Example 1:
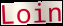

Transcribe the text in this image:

Loin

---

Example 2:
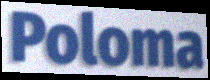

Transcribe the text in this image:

Poloma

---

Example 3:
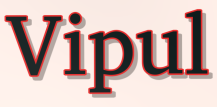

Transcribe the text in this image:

Vipul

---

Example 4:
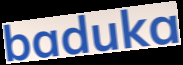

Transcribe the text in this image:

baduka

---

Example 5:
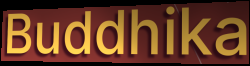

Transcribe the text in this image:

Buddhika